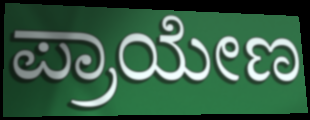
ಪ್ರಾಯೇಣ